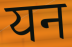
यन